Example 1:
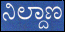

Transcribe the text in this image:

ನಿಲ್ದಾಣ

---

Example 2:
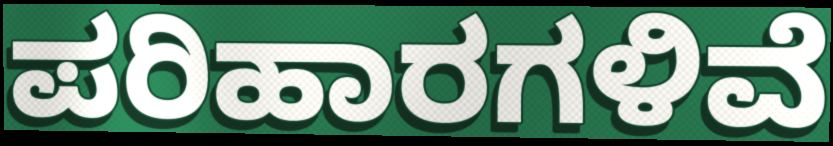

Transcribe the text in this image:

ಪರಿಹಾರಗಳಿವೆ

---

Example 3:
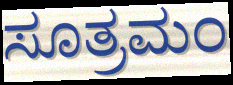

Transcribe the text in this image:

ಸೂತ್ರಮಂ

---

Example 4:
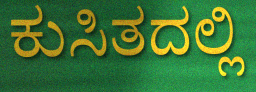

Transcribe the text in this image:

ಕುಸಿತದಲ್ಲಿ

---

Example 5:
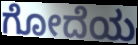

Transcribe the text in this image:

ಗೋದೆಯ